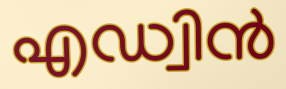
എഡ്വിൻ